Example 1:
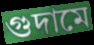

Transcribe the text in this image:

গুদামে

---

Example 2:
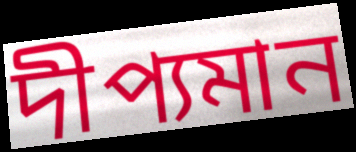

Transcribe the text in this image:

দীপ্যমান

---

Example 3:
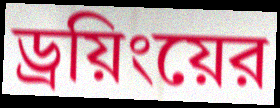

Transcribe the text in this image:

ড্রয়িংয়ের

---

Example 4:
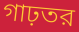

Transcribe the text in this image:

গাঢ়তর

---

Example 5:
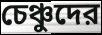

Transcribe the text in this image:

চেঞ্চুদের